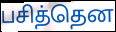
பசித்தென